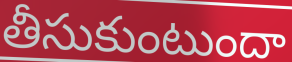
తీసుకుంటుందా